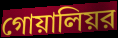
গোয়ালিয়র